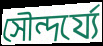
সৌন্দর্য্যে